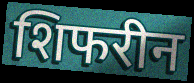
शिफरीन